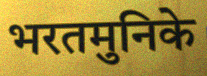
भरतमुनिके